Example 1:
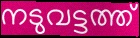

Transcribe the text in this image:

നടുവട്ടത്ത്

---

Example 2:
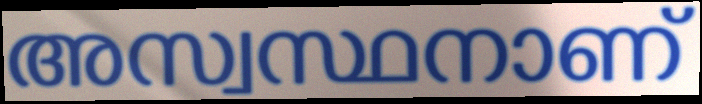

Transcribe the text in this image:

അസ്വസ്ഥനാണ്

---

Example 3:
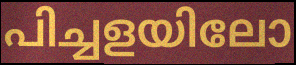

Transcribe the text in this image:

പിച്ചളയിലോ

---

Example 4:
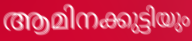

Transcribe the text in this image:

ആമിനക്കുട്ടിയും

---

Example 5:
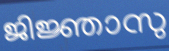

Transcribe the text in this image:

ജിജ്ഞാസു